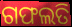
ଗଫଲତି